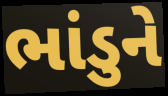
ભાંડુને